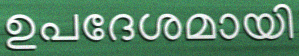
ഉപദേശമായി